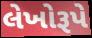
લેખોરૂપે